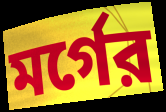
মর্গের